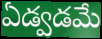
ఏడ్వడమే